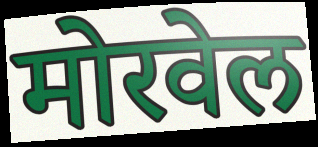
मोरवेल